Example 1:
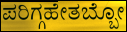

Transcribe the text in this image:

ಪರಿಗ್ಗಹೇತಬ್ಬೋ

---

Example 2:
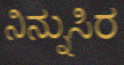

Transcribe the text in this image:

ನಿನ್ನುಸಿರ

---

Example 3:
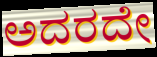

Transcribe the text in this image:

ಅದರದೇ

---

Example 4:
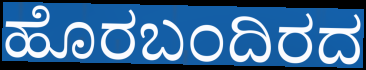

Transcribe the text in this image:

ಹೊರಬಂದಿರದ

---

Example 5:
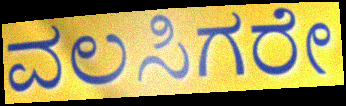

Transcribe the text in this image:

ವಲಸಿಗರೇ